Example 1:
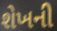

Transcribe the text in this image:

શેખની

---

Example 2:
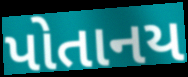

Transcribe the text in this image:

પોતાનય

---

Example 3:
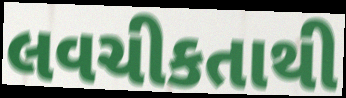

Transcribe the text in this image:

લવચીકતાથી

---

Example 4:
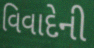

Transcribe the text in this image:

વિવાદેની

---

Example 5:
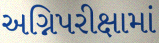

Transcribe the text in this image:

અગ્નિપરીક્ષામાં